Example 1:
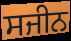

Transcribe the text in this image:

ਸਜੀਨ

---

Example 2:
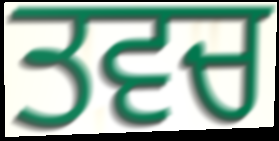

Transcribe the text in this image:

ਤਵਚ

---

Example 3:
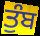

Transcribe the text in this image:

ਤੁੰਬ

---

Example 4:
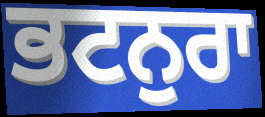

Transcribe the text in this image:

ਭਟਨੁਰਾ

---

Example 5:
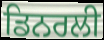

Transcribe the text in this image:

ਡਿਨਰਲੀ